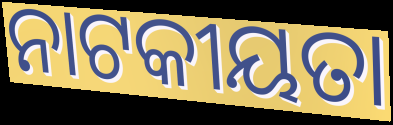
ନାଟକୀୟତା